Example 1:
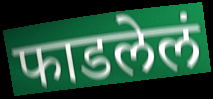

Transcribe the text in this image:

फाडलेलं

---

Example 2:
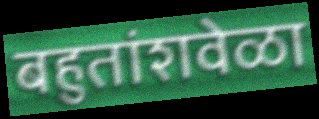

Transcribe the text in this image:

बहुतांशवेळा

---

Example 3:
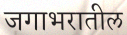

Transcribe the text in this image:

जगाभरातील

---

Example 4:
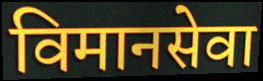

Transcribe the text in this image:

विमानसेवा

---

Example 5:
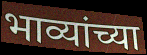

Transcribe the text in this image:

भाव्यांच्या